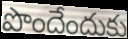
పొందేందుకు